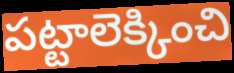
పట్టాలెక్కించి